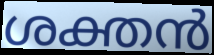
ശക്തൻ